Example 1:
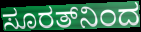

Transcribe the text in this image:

ಸೂರತ್‌ನಿಂದ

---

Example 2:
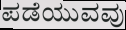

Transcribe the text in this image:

ಪಡೆಯುವವು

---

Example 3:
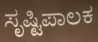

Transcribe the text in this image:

ಸೃಷ್ಟಿಪಾಲಕ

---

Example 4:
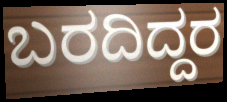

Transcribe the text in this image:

ಬರದಿದ್ದರ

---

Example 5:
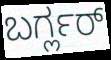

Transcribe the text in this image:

ಬರ್ಗ್ಲರ್